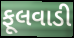
ફૂલવાડી